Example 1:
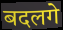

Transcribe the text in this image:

बदलगे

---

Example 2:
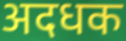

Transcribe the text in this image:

अदधक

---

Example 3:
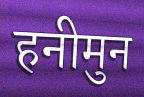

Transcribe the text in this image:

हनीमुन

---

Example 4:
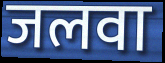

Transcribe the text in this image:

जलवा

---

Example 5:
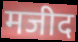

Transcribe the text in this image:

मजीद